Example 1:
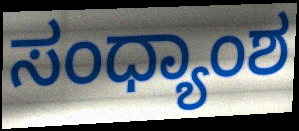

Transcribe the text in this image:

ಸಂಧ್ಯಾಂಶ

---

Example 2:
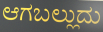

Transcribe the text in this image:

ಆಗಬಲ್ಲುದು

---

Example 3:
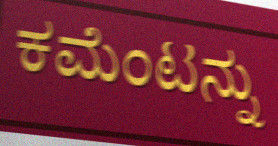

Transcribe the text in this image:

ಕಮೆಂಟನ್ನು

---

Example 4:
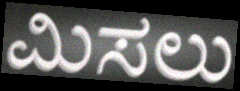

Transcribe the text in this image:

ಮಿಸಲು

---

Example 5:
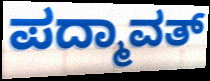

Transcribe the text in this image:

ಪದ್ಮಾವತ್